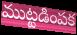
ముట్టడింపక